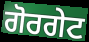
ਗੋਰਗੇਟ